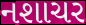
નશાચર